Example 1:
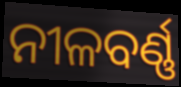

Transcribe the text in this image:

ନୀଳବର୍ଣ୍ଣ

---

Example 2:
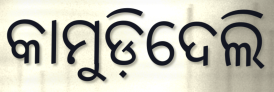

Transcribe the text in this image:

କାମୁଡ଼ିଦେଲି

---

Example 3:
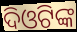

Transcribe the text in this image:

ଦିଓଟିଙ୍କ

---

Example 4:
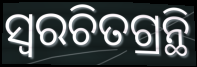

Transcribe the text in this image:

ସ୍ଵରଚିତଗ୍ରନ୍ଥି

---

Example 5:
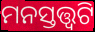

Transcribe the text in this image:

ମନସ୍ତତ୍ତ୍ୱଟି